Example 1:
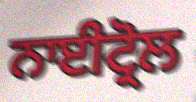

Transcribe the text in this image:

ਨਾਈਟ੍ਰੋਲ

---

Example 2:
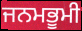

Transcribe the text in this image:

ਜਨਮਭੂਮੀ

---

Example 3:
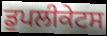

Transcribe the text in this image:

ਡੁਪਲੀਕੇਟਸ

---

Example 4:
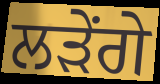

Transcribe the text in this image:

ਲੜੇਂਗੇ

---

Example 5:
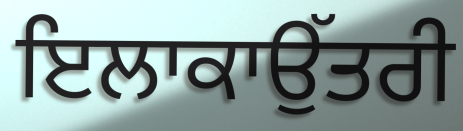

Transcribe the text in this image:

ਇਲਾਕਾਉੱਤਰੀ